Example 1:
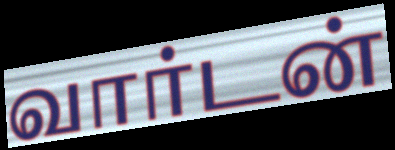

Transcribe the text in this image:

வார்டன்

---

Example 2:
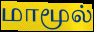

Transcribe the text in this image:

மாமூல்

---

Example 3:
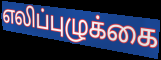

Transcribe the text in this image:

எலிப்புழுக்கை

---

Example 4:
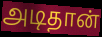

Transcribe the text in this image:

அடிதான்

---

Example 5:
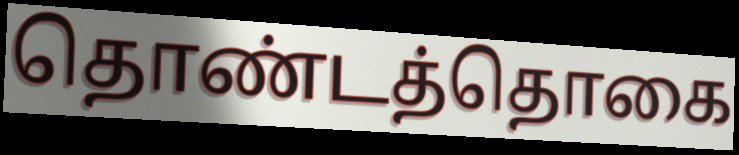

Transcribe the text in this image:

தொண்டத்தொகை